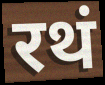
रथं